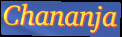
Chananja